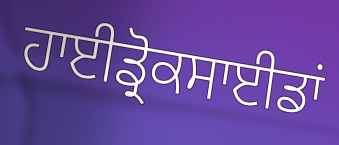
ਹਾਈਡ੍ਰੋਕਸਾਈਡਾਂ